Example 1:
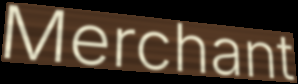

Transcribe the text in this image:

Merchant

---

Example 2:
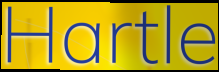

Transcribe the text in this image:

Hartle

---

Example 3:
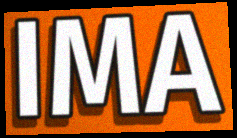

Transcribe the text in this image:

IMA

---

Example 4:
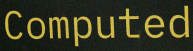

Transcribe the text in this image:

Computed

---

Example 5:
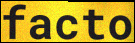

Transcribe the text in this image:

facto